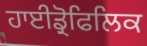
ਹਾਈਡ੍ਰੋਫਿਲਿਕ